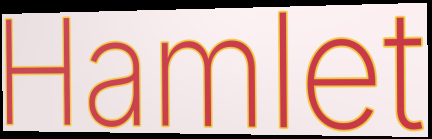
Hamlet